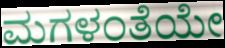
ಮಗಳಂತೆಯೇ